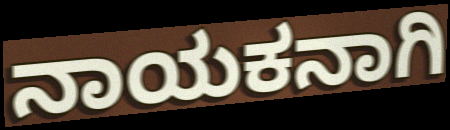
ನಾಯಕನಾಗಿ